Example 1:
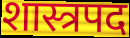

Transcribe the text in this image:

शास्त्रपद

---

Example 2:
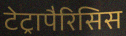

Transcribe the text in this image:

टेट्रापैरिसिस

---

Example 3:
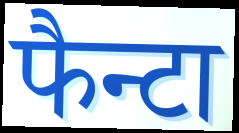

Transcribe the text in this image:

फैन्टा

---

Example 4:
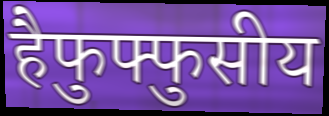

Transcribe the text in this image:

हैफुफ्फुसीय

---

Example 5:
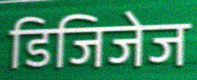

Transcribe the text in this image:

डिजिजेज